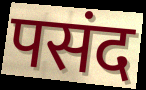
पसंद